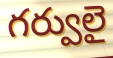
గర్వులై